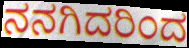
ನನಗಿದರಿಂದ